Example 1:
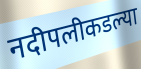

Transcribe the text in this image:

नदीपलीकडल्या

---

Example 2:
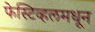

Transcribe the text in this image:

फेस्टिव्हलमधून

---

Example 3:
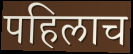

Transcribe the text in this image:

पहिलाच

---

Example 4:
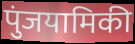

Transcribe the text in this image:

पुंजयामिकी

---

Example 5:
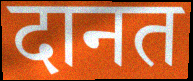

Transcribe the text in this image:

दानत